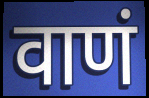
वाणं